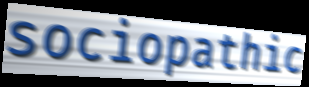
sociopathic